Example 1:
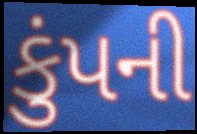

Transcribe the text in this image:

કુંપની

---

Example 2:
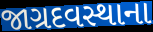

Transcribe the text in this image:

જાગ્રદવસ્થાના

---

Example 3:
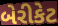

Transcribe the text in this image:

બેરીકેટ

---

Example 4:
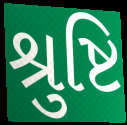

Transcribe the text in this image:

શ્રુષ્ટિ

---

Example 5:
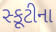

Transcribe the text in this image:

સ્કૂટીના